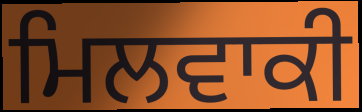
ਮਿਲਵਾਕੀ